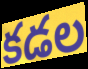
కడల